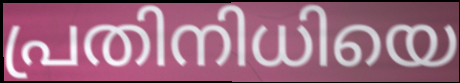
പ്രതിനിധിയെ